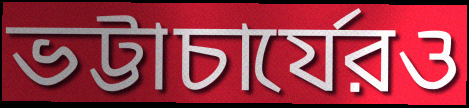
ভট্টাচার্যেরও